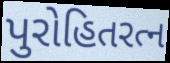
પુરોહિતરત્ન